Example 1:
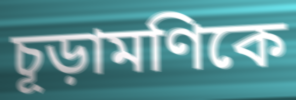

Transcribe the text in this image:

চূড়ামণিকে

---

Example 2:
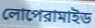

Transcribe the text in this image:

লোপেরামাইড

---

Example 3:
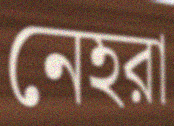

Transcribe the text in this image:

নেহরা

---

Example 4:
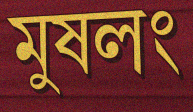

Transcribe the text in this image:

মুষলং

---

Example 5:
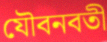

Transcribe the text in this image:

যৌবনবতী